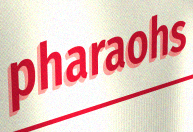
pharaohs